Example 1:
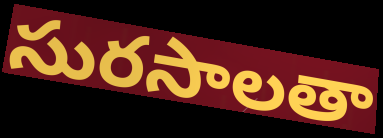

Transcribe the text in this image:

సురసాలతా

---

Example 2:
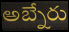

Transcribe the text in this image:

అబ్నేరు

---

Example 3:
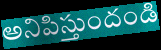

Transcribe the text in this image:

అనిపిస్తుందండి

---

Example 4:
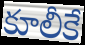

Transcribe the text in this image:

కూలీకే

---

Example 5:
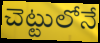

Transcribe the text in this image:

చెట్టులోనే